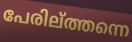
പേരില്ത്തന്നെ